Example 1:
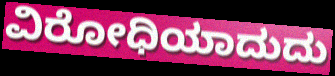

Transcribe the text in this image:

ವಿರೋಧಿಯಾದುದು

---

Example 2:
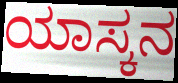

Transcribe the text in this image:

ಯಾಸ್ಕನ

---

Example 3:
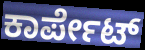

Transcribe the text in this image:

ಕಾರ್ಪೇಟ್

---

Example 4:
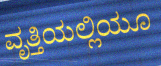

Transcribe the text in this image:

ವೃತ್ತಿಯಲ್ಲಿಯೂ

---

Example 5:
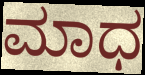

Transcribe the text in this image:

ಮಾಧ